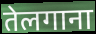
तेलगाना